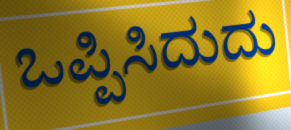
ಒಪ್ಪಿಸಿದುದು